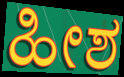
ಹೀಶ